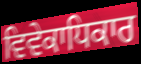
ਵਿਵੇਕਾਧਿਕਾਰ